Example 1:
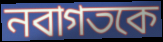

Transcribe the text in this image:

নবাগতকে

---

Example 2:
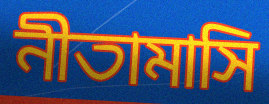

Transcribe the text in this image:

নীতামাসি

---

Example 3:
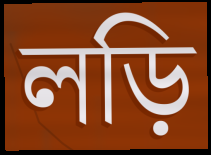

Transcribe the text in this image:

লড়ি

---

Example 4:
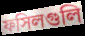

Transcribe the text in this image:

ফসিলগুলি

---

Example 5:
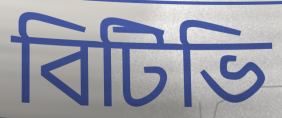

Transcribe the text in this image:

বিটিভি